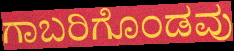
ಗಾಬರಿಗೊಂಡವು